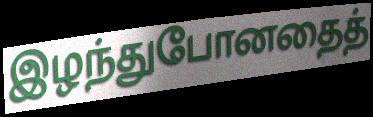
இழந்துபோனதைத்